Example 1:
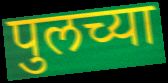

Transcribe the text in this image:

पुलच्या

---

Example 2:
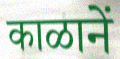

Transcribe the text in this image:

काळानें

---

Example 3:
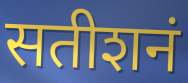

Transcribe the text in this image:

सतीशनं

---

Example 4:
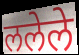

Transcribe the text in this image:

ललेले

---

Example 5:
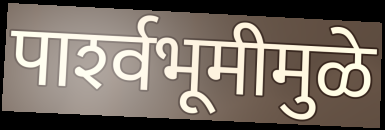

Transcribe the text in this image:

पार्श्‍वभूमीमुळे